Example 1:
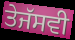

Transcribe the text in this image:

ਤੇਜੱਸਵੀ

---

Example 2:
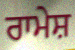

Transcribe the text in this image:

ਰਾਮੇਸ਼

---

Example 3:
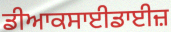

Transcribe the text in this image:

ਡੀਆਕਸਾਈਡਾਈਜ਼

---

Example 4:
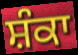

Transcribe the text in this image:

ਸ਼ੰਕਾ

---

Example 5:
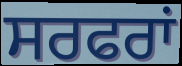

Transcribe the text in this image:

ਸਰਫਰਾਂ